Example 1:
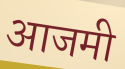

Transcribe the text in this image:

आजमी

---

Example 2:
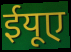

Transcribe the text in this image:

ईयूए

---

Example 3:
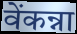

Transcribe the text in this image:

वेंकन्ना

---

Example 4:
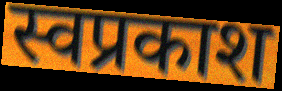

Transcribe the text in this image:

स्वप्रकाश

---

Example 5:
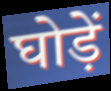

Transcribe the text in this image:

घोड़ें